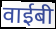
वाईबी